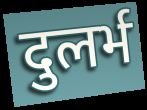
दुलर्भ